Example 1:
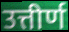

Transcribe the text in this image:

उत्तीर्ण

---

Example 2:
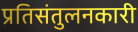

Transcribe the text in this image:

प्रतिसंतुलनकारी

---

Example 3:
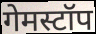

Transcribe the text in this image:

गेमस्टॉप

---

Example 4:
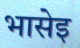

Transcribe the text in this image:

भासेइ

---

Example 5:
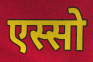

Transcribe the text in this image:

एस्सो